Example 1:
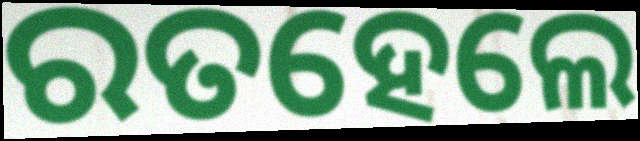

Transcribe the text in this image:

ରତହେଲେ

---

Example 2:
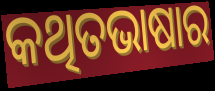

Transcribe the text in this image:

କଥିତଭାଷାର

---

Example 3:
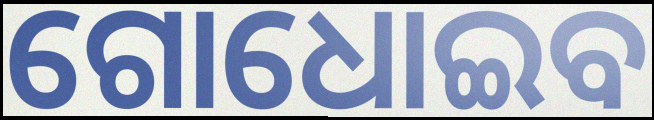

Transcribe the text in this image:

ଗୋଧୋଇବ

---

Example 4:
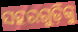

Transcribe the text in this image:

ସହରଗୁଡ଼ିକୁ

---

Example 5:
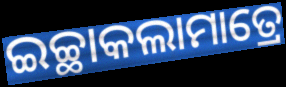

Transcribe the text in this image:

ଇଚ୍ଛାକଲାମାତ୍ରେ